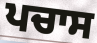
ਪਚਾਸ